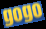
gogo